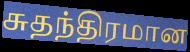
சுதந்திரமான